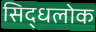
सिद्धलोक